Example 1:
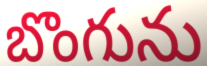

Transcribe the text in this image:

బొంగును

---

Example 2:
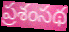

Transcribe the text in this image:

ప్రశంసథ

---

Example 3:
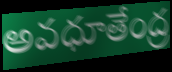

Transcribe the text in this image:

అవధూతేంద్ర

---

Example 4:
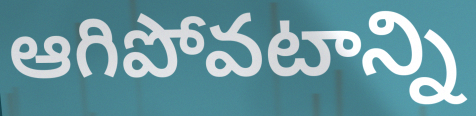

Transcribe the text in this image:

ఆగిపోవటాన్ని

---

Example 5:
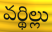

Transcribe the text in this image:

వర్థిల్లు